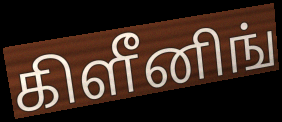
கிளீனிங்